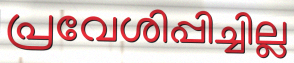
പ്രവേശിപ്പിച്ചില്ല